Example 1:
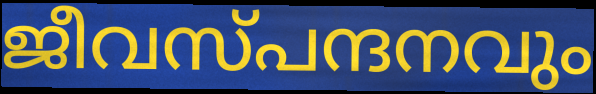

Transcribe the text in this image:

ജീവസ്പന്ദനവും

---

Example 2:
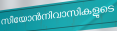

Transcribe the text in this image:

സീയോൻനിവാസികളുടെ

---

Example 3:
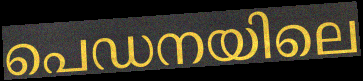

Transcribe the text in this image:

പെഡനയിലെ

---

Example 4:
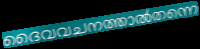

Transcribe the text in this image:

ദൈവവചനത്താൽതന്നെ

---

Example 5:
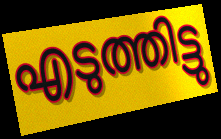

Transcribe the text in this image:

എടുത്തിട്ടു